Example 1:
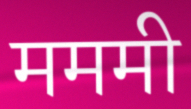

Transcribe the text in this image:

मममी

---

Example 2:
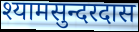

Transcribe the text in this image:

श्यामसुन्दरदास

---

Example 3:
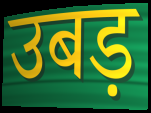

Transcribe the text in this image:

उबड़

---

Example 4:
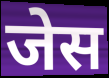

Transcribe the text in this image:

जेस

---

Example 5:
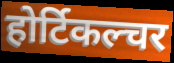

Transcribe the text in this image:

होर्टिकल्चर